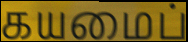
கயமைப்